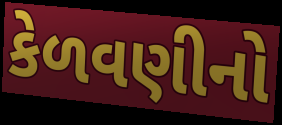
કેળવણીનો